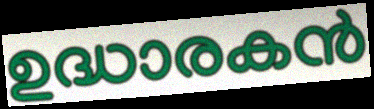
ഉദ്ധാരകൻ